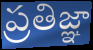
ప్రతిజ్ఞా